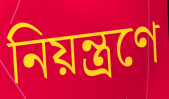
নিয়ন্ত্ৰণে